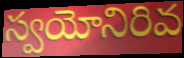
స్వయోనిరివ